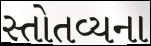
સ્તોતવ્યના